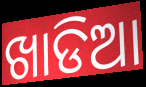
ଖାଡିଆ